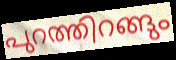
പുറത്തിറങ്ങും